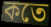
কতে